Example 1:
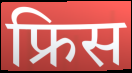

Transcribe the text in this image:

फ्रिस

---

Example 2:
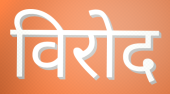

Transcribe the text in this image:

विरोद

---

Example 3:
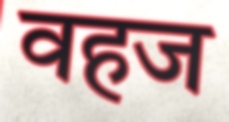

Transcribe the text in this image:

वहज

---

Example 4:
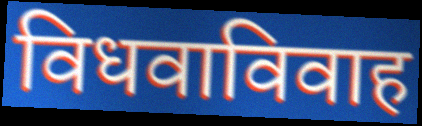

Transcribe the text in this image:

विधवाविवाह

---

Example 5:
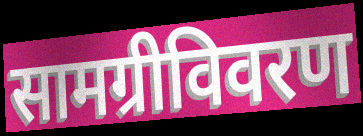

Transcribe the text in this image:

सामग्रीविवरण